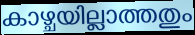
കാഴ്ചയില്ലാത്തതും